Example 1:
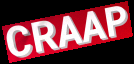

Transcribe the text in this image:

CRAAP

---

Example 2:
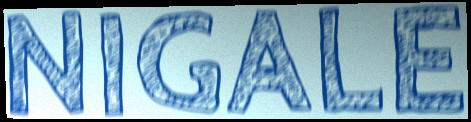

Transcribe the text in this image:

NIGALE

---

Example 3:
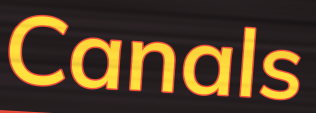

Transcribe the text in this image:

Canals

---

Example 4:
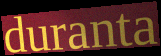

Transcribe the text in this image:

duranta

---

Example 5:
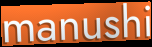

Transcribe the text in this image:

manushi